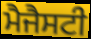
ਮੈਜੈਸਟੀ